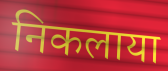
निकलाया